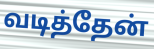
வடித்தேன்